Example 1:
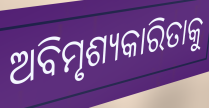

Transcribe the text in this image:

ଅବିମୃଶ୍ୟକାରିତାକୁ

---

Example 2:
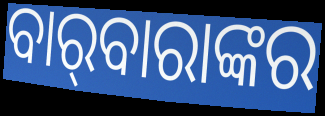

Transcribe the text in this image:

ବାର୍‌ବାରାଙ୍କର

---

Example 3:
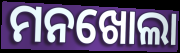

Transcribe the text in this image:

ମନଖୋଲା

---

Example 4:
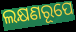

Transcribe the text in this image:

ଲକ୍ଷଣରୂପେ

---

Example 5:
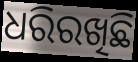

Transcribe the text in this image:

ଧରିରଖିଛି